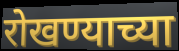
रोखण्याच्या